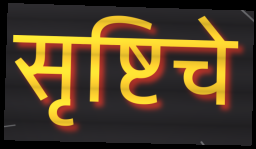
सृष्टिचे